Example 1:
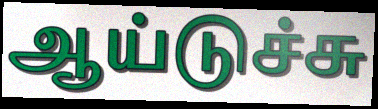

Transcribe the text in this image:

ஆய்டுச்சு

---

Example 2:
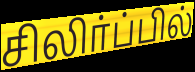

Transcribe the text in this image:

சிலிர்ப்பில்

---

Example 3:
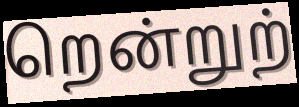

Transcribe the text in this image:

றென்றுற்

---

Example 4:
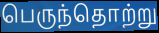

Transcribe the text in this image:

பெருந்தொற்று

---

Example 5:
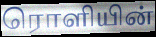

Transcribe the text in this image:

ரொளியின்